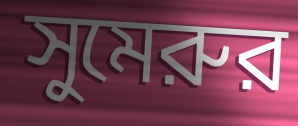
সুমেরুর